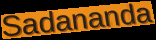
Sadananda